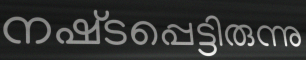
നഷ്‌ടപ്പെട്ടിരുന്നു